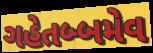
ગહેતબ્બમેવ